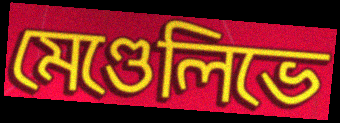
মেণ্ডেলিভে